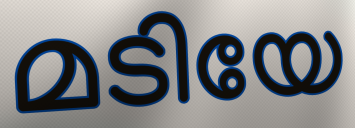
മടിയേ